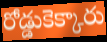
రోడ్డుకెక్కారు